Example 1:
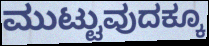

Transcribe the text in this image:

ಮುಟ್ಟುವುದಕ್ಕೂ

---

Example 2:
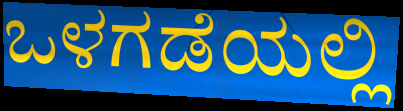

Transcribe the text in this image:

ಒಳಗಡೆಯಲ್ಲಿ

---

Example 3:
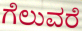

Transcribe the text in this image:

ಗೆಲುವರೆ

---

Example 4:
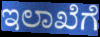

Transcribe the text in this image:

ಇಲಾಖೆಗೆ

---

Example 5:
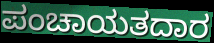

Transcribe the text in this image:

ಪಂಚಾಯತದಾರ